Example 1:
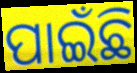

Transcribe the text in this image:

ପାଇଁଛି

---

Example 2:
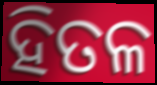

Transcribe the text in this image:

ହିତଳ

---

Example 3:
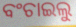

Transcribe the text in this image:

ବଂଚାଇଲୁ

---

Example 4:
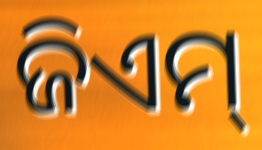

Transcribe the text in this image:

ଜିଏମ୍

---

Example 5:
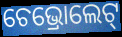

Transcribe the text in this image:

ଚେଭ୍ରୋଲେଟ୍